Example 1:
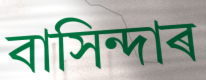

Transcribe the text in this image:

বাসিন্দাৰ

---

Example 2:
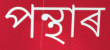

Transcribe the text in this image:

পন্থাৰ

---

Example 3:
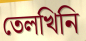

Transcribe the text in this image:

তেলখিনি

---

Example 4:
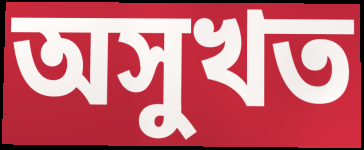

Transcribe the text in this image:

অসুখত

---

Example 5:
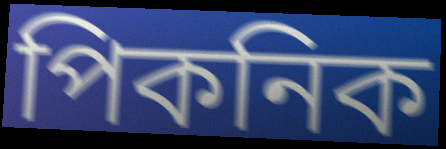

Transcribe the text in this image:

পিকনিক